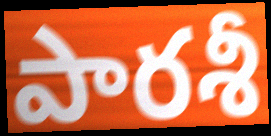
పారశీ